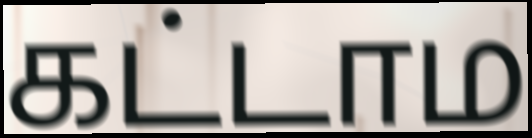
கட்டாம